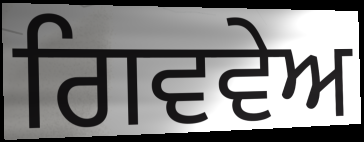
ਗਿਵਵੇਅ